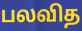
பலவித